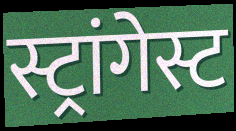
स्ट्रांगेस्ट